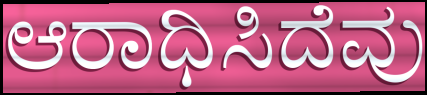
ಆರಾಧಿಸಿದೆವು